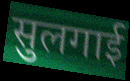
सुलगाई